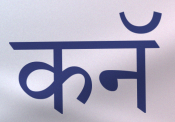
कनॅ